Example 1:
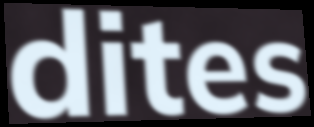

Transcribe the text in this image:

dites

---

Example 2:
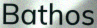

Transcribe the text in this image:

Bathos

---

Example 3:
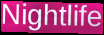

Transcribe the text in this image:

Nightlife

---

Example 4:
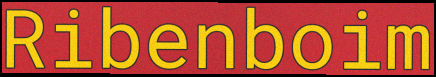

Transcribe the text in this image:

Ribenboim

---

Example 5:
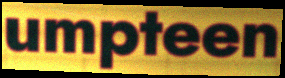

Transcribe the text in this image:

umpteen